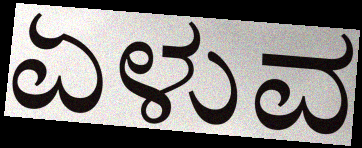
ಏಳುವ